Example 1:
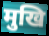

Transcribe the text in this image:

मुखि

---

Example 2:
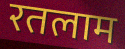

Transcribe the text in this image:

रतलाम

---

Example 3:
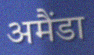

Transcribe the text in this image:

अमैंडा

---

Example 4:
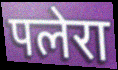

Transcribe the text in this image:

पलेरा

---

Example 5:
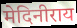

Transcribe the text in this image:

मेदिनीराय